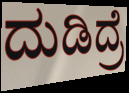
ದುಡಿದ್ರೆ